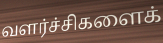
வளர்ச்சிகளைக்